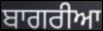
ਬਾਗਰੀਆ